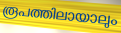
രൂപത്തിലായാലും